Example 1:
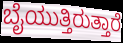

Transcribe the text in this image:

ಬೈಯುತ್ತಿರುತ್ತಾರೆ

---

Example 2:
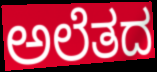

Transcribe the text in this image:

ಅಲೆತದ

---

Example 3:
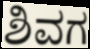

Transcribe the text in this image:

ಶಿವಗ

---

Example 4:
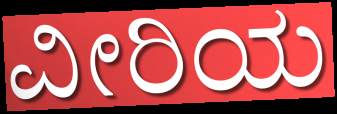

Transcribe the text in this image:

ವೀರಿಯ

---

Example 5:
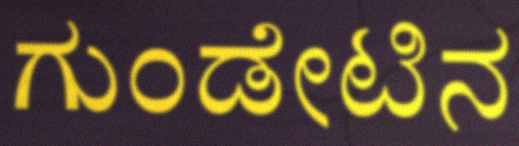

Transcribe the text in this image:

ಗುಂಡೇಟಿನ